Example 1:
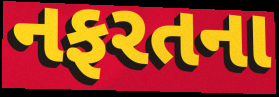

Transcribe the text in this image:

નફરતના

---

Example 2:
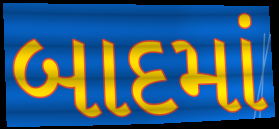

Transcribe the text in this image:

બાદમાં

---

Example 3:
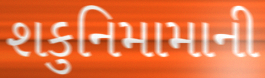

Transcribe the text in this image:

શકુનિમામાની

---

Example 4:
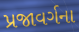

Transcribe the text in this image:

પ્રજાવર્ગના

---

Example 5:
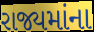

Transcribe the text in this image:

રાજ્યમાંના